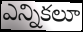
ఎన్నికలూ